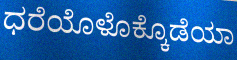
ಧರೆಯೊಳೊಕ್ಕೊಡೆಯಾ